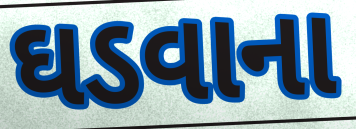
ઘડવાના